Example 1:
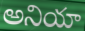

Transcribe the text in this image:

అనియా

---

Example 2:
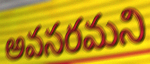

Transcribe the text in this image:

అవసరమని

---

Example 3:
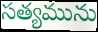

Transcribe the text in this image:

సత్యమును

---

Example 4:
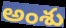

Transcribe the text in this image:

అంశు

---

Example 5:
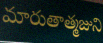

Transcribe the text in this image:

మారుతాత్మజుని